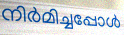
നിർമിച്ചപ്പോൾ